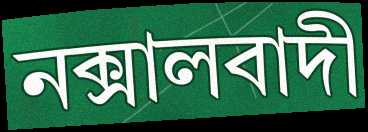
নক্সালবাদী